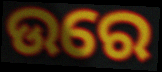
ଉରେ